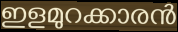
ഇളമുറക്കാരൻ